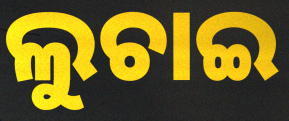
ଲୁଚାଇ